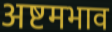
अष्टमभाव